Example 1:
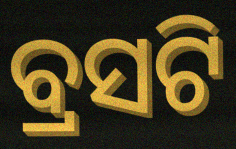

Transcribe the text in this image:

ବ୍ରସଟି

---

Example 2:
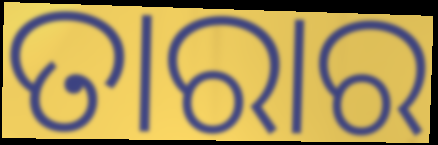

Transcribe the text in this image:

ତାରାର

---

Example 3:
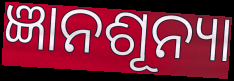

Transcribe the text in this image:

ଜ୍ଞାନଶୂନ୍ୟା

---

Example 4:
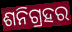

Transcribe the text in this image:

ଶନିଗ୍ରହର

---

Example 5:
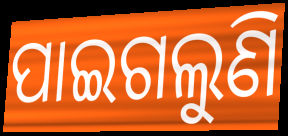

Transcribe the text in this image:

ପାଇଗଲୁଣି